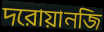
দরোয়ানজি